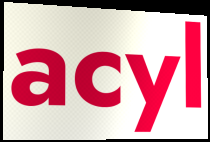
acyl